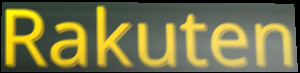
Rakuten